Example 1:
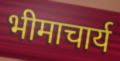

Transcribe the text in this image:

भीमाचार्य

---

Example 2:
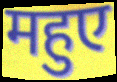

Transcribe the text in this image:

महुए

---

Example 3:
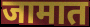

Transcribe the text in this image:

जामात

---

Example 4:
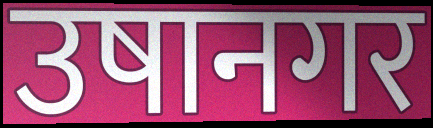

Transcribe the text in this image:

उषानगर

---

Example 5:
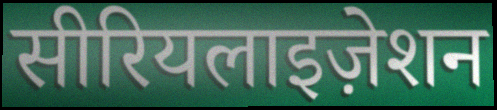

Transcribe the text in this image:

सीरियलाइज़ेशन